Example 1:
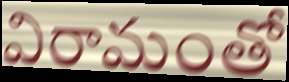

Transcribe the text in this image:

విరామంతో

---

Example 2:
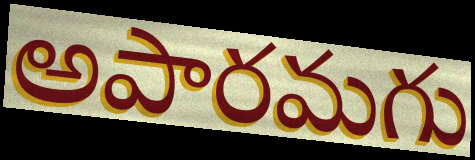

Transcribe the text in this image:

అపారమగు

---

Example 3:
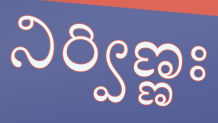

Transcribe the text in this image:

నిర్విణ్ణః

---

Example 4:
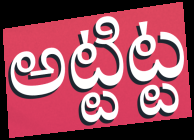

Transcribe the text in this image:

అట్టిట్ట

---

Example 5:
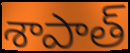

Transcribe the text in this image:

శాపాత్